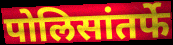
पोलिसांतर्फे